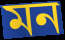
মন